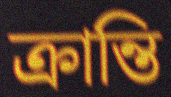
ক্রান্তি